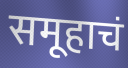
समूहाचं